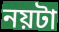
নয়টা